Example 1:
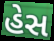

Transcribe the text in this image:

હેસ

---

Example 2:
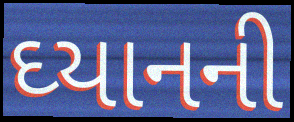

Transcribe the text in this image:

ઘ્યાનની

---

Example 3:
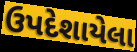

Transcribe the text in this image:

ઉપદેશાયેલા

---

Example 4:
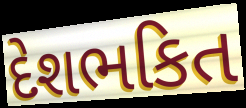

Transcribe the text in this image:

દેશભકિત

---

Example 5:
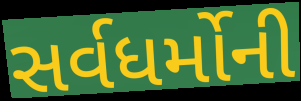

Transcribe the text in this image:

સર્વધર્મોની